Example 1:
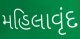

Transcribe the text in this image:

મહિલાવૃંદ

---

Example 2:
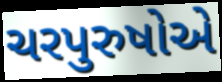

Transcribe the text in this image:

ચરપુરુષોએ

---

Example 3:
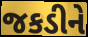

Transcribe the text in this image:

જકડીને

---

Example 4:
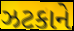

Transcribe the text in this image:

ઝટકાને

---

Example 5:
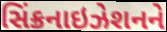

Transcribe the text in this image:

સિંક્રનાઇઝેશનને